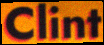
Clint